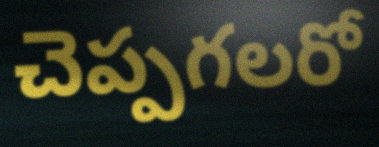
చెప్పగలరో